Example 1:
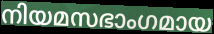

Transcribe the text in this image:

നിയമസഭാംഗമായ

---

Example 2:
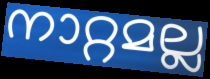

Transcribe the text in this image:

നാറ്റമല്ല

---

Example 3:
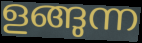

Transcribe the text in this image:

ളങ്ങുന്ന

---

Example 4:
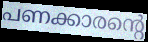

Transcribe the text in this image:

പണക്കാരന്റെ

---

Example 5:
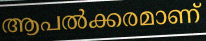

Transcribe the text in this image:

ആപൽക്കരമാണ്